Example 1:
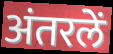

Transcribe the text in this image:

अंतरलें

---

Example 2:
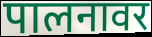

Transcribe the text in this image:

पालनावर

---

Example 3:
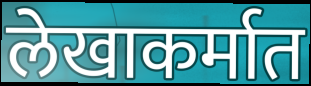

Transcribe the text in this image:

लेखाकर्मात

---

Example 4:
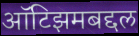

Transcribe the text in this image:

ऑटिझमबद्दल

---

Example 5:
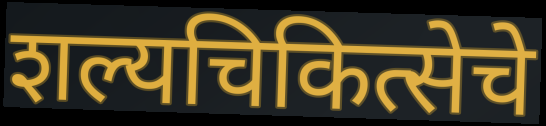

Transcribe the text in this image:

शल्यचिकित्सेचे